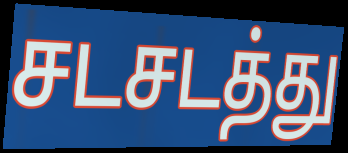
சடசடத்து